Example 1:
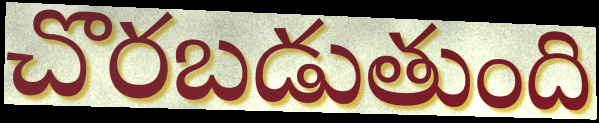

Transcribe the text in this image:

చొరబడుతుంది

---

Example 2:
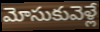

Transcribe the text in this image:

మోసుకువెళ్లే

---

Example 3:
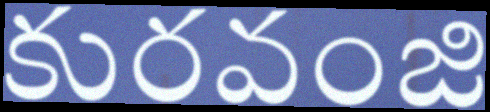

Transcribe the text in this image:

కురవంజి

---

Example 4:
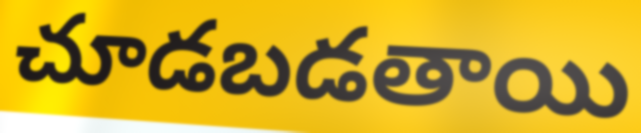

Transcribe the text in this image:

చూడబడతాయి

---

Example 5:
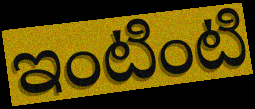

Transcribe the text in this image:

ఇంటింటి